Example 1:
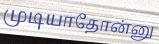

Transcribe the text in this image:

முடியாதோன்னு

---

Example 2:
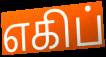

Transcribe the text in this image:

எகிப்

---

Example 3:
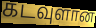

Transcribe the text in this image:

கடவுளான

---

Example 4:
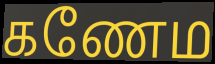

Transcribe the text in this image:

கணேம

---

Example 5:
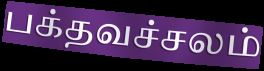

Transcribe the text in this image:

பக்தவச்சலம்